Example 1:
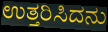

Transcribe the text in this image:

ಉತ್ತರಿಸಿದನು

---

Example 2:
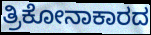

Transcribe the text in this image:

ತ್ರಿಕೋನಾಕಾರದ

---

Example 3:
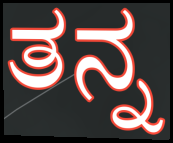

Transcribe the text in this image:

ತನ್ನ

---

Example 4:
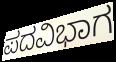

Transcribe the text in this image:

ಪದವಿಭಾಗ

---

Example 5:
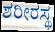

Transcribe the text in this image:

ಶರೀರಸ್ಥ